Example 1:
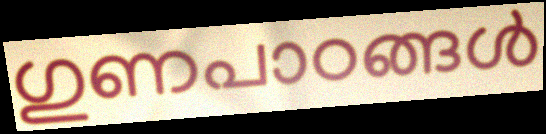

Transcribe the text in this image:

ഗുണപാഠങ്ങൾ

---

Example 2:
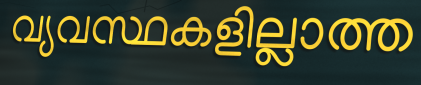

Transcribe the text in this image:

വ്യവസ്ഥകളില്ലാത്ത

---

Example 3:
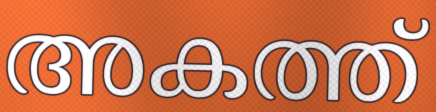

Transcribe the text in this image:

അകത്ത്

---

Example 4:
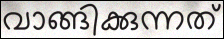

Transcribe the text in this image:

വാങ്ങിക്കുന്നത്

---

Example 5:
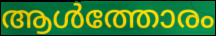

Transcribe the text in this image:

ആൾത്തോരം